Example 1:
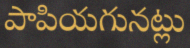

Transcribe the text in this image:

పాపియగునట్లు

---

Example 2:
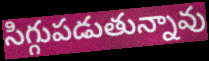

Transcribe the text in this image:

సిగ్గుపడుతున్నావు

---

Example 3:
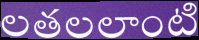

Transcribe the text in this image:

లతలలాంటి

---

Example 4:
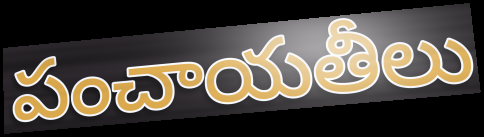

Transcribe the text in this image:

పంచాయతీలు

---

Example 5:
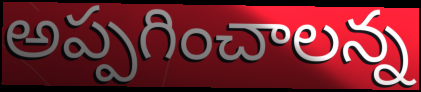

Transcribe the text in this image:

అప్పగించాలన్న